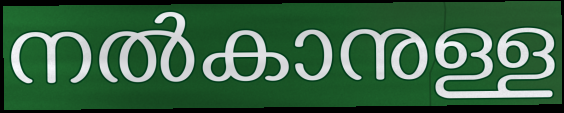
നൽകാനുള്ള